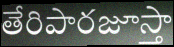
తేరిపారజూస్తా